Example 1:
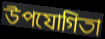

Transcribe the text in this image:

উপযোগিতা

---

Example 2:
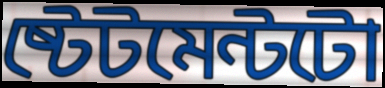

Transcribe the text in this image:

ষ্টেটমেন্টটো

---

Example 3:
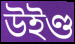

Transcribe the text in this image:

উইণ্ড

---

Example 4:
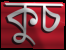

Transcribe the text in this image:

কুচ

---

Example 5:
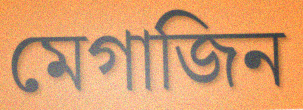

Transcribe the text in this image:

মেগাজিন